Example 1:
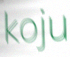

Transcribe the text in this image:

koju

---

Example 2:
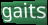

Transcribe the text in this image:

gaits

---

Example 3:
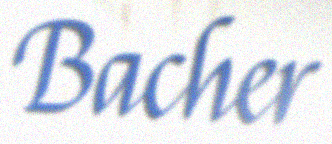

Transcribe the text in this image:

Bacher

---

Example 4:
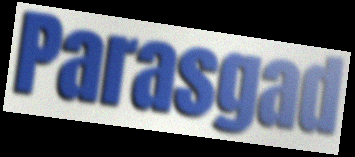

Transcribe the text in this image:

Parasgad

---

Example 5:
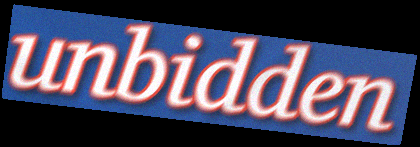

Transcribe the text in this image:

unbidden